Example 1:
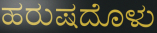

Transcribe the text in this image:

ಹರುಷದೊಳು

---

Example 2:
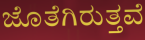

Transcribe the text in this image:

ಜೊತೆಗಿರುತ್ತವೆ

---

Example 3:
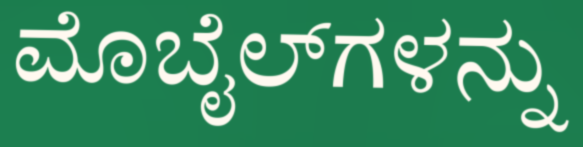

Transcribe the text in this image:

ಮೊಬೈಲ್‌ಗಳನ್ನು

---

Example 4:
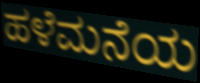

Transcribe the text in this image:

ಹಳೆಮನೆಯ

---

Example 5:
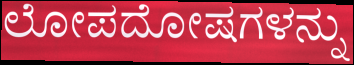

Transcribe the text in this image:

ಲೋಪದೋಷಗಳನ್ನು